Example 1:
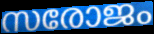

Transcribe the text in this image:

സരോജം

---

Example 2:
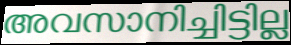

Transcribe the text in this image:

അവസാനിച്ചിട്ടില്ല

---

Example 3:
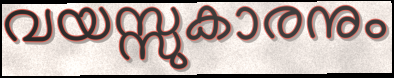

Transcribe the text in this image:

വയസ്സുകാരനും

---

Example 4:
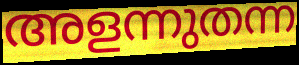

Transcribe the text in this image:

അളന്നുതന്ന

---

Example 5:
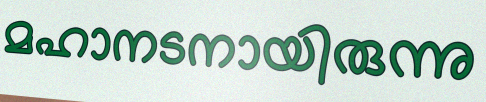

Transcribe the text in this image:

മഹാനടനായിരുന്നു